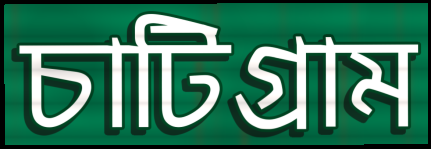
চাটিগ্রাম